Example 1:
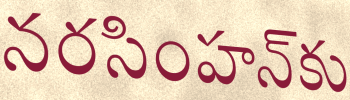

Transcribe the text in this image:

నరసింహన్‌కు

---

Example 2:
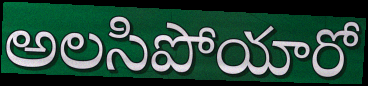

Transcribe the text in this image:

అలసిపోయారో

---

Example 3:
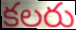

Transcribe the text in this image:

కలరు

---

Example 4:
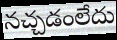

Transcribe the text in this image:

నచ్చడంలేదు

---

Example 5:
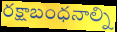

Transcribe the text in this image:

రక్షాబంధనాల్ని